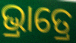
ଭ୍ରାତ୍ରେ